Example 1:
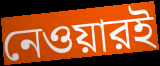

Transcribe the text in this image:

নেওয়ারই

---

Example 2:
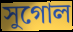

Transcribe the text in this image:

সুগোল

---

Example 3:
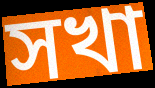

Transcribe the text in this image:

সখা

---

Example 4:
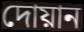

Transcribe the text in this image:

দোয়ান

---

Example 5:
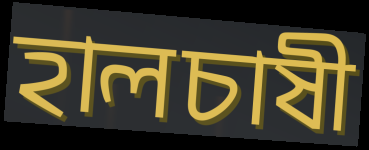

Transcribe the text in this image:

হালচাষী